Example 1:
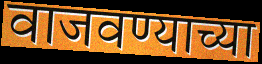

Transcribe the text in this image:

वाजवण्याच्या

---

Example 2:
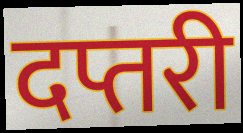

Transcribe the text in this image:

दप्तरी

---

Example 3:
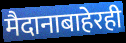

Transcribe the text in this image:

मैदानाबाहेरही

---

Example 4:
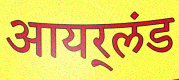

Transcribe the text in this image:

आयर्लंड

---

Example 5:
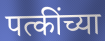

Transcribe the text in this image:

पत्कींच्या